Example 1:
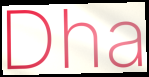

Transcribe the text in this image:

Dha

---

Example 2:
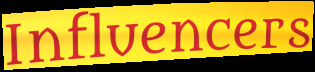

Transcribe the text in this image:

Influencers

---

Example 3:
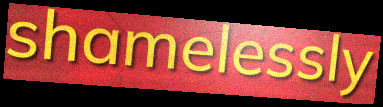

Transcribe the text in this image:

shamelessly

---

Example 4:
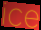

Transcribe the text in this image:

ice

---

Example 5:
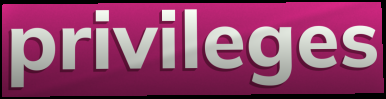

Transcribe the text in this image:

privileges